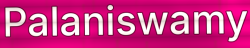
Palaniswamy